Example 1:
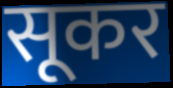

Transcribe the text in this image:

सूकर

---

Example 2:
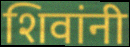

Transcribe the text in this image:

शिवांनी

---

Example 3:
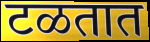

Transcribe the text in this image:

टळतात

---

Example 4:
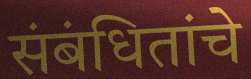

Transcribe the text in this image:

संबंधितांचे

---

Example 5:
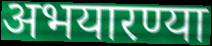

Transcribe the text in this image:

अभयारण्या